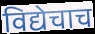
विद्येचाच